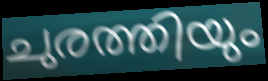
ചുരത്തിയും